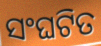
ସଂଘଟିତ